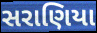
સરાણિયા